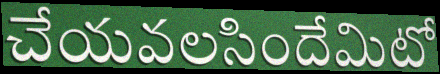
చేయవలసిందేమిటో